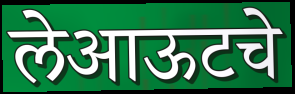
लेआऊटचे